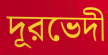
দূরভেদী